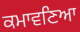
ਕਮਾਵਣਿਆ